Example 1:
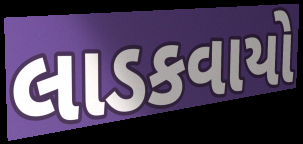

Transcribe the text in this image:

લાડકવાયો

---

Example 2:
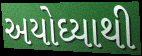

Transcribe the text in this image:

અયોઘ્યાથી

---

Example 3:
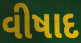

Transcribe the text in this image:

વીષાદ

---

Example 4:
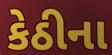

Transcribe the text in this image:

કેઠીના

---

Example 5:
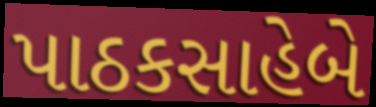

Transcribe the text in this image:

પાઠકસાહેબે